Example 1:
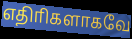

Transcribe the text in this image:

எதிரிகளாகவே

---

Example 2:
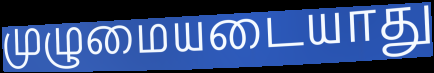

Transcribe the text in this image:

முழுமையடையாது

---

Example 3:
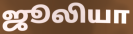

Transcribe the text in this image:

ஜூலியா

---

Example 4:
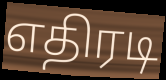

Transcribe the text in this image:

எதிரடி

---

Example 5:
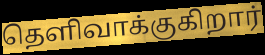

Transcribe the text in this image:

தெளிவாக்குகிறார்